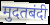
मुदतबंदी